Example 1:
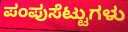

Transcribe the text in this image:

ಪಂಪುಸೆಟ್ಟುಗಳು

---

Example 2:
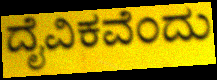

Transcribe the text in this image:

ದೈವಿಕವೆಂದು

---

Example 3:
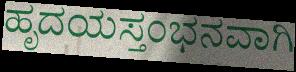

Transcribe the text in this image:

ಹೃದಯಸ್ತಂಭನವಾಗಿ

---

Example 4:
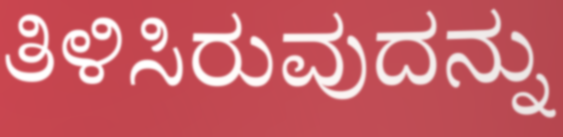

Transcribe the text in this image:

ತಿಳಿಸಿರುವುದನ್ನು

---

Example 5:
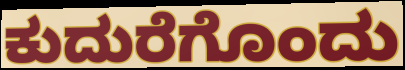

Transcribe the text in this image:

ಕುದುರೆಗೊಂದು